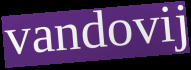
vandovij